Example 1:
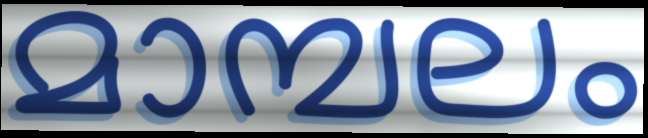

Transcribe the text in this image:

മാമ്പലം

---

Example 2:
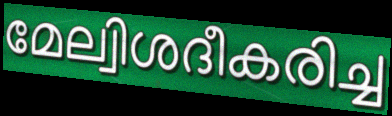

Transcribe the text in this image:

മേല്വിശദീകരിച്ച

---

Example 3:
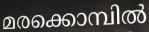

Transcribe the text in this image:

മരക്കൊമ്പിൽ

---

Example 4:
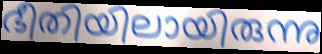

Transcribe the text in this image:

ഭീതിയിലായിരുന്നു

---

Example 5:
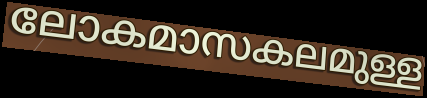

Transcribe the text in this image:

ലോകമാസകലമുള്ള